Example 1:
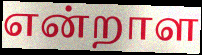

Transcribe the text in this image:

என்றாள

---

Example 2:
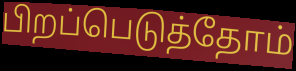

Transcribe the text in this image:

பிறப்பெடுத்தோம்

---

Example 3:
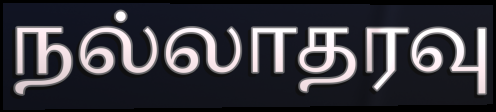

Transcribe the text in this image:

நல்லாதரவு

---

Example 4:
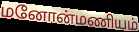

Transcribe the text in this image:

மனோன்மணியம்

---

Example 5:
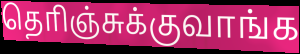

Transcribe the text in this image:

தெரிஞ்சுக்குவாங்க